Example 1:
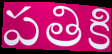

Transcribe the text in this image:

పతికి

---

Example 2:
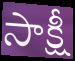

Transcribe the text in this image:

సాక్షీ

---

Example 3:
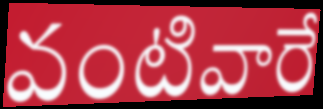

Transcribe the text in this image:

వంటివారే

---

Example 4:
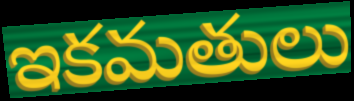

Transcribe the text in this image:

ఇకమతులు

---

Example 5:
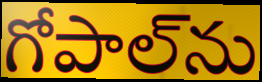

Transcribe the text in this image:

గోపాల్‌ను